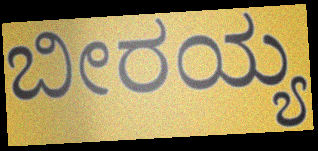
ಬೀರಯ್ಯ